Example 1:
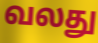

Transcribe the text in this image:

வலது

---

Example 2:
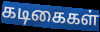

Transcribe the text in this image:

கடிகைகள்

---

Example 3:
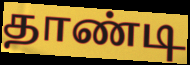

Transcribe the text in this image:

தாண்டி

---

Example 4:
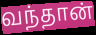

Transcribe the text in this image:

வந்தான்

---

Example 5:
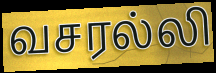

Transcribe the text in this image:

வசரல்லி